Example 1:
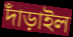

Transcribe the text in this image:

দাঁড়াইল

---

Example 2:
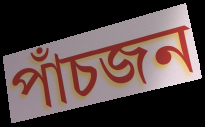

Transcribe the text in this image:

পাঁচজন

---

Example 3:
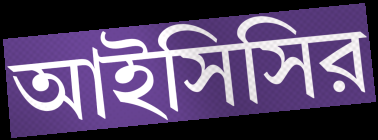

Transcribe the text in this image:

আইসিসির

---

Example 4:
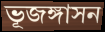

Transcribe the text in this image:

ভূজঙ্গাসন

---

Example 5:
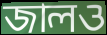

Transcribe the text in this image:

জালও